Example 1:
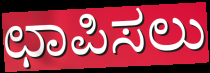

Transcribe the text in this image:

ಛಾಪಿಸಲು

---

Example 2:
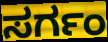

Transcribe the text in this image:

ಸರ್ಗಂ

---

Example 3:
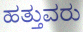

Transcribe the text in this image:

ಹತ್ತುವರು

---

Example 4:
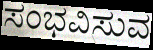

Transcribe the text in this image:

ಸಂಭವಿಸುವ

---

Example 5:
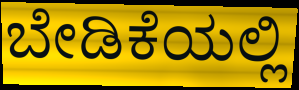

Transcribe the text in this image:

ಬೇಡಿಕೆಯಲ್ಲಿ